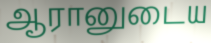
ஆரானுடைய